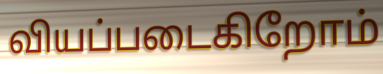
வியப்படைகிறோம்